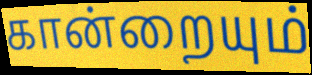
கான்றையும்